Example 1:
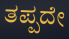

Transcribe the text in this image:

ತಪ್ಪದೇ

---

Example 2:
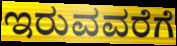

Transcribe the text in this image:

ಇರುವವರೆಗೆ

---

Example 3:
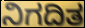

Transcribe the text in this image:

ನಿಗದಿತ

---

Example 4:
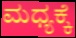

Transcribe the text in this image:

ಮಧ್ಯಕ್ಕೆ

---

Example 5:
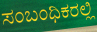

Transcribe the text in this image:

ಸಂಬಂಧಿಕರಲ್ಲಿ